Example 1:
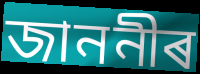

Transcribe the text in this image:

জাননীৰ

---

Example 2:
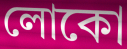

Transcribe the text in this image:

লোকো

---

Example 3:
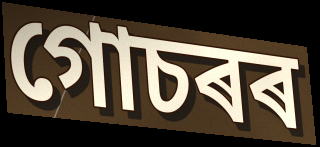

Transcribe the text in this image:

গোচৰৰ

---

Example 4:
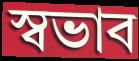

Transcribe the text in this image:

স্বভাব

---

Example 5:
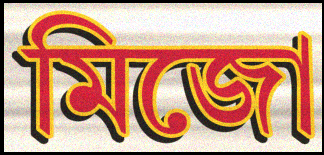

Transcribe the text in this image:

মিজো